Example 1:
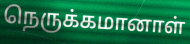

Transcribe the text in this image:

நெருக்கமானாள்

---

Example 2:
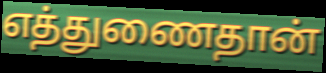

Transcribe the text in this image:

எத்துணைதான்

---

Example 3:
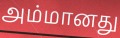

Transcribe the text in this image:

அம்மானது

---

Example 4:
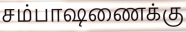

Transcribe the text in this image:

சம்பாஷணைக்கு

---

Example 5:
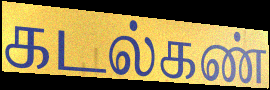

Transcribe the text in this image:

கடல்கண்